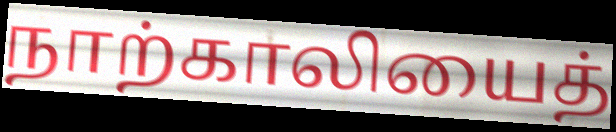
நாற்காலியைத்